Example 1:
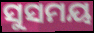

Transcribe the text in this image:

ସୁସମୟ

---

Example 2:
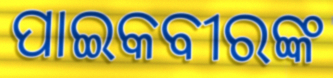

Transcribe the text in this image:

ପାଇକବୀରଙ୍କ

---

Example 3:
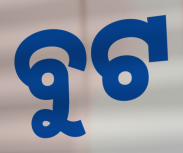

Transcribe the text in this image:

ବୁଟ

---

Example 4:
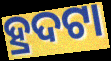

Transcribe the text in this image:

ହ୍ରଦଟା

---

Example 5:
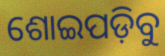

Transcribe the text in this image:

ଶୋଇପଡ଼ିବୁ